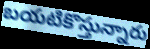
బయటికొస్తున్నారు